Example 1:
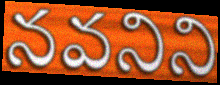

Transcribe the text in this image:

నవనిని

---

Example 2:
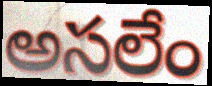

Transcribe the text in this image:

అసలేం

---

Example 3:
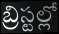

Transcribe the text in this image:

బ్రిస్టల్లో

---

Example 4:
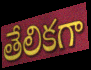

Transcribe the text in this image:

తేలికగా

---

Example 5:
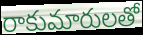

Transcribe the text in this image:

రాకుమారులతో